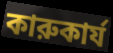
কারুকার্য